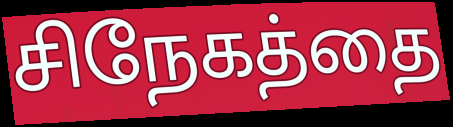
சிநேகத்தை